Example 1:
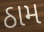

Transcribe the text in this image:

ઠામ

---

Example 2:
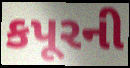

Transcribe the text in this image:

કપૂરની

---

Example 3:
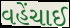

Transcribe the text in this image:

વહેંચાઈ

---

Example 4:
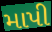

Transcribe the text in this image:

માપી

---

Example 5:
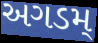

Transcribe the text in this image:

અગડમ્